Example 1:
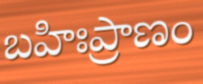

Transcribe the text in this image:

బహిఃప్రాణం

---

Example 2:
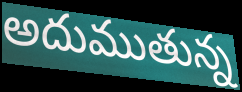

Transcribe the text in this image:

అదుముతున్న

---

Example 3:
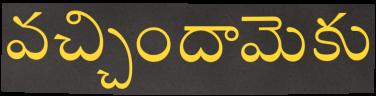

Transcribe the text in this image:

వచ్చిందామెకు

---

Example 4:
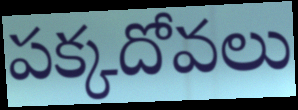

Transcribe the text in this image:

పక్కదోవలు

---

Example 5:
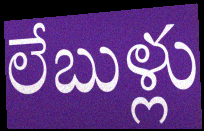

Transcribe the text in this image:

లేబుళ్లు